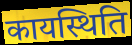
कायस्थिति